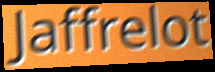
Jaffrelot